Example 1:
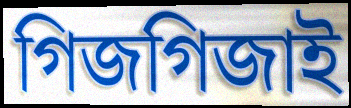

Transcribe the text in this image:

গিজগিজাই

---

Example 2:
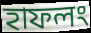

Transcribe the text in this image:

হাফলং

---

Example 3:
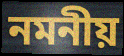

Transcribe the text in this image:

নমনীয়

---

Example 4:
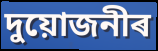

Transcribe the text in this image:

দুয়োজনীৰ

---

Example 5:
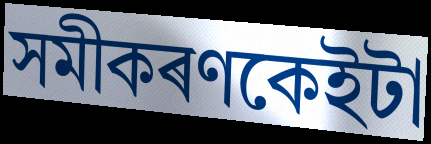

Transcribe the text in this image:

সমীকৰণকেইটা